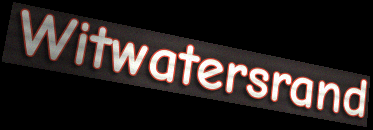
Witwatersrand